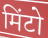
मिंटो